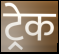
ट्रेक